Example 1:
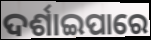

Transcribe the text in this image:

ଦର୍ଶାଇପାରେ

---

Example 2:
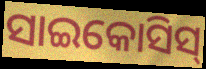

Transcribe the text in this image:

ସାଇକୋସିସ୍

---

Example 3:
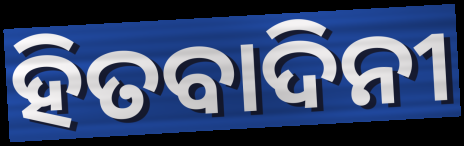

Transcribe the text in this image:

ହିତବାଦିନୀ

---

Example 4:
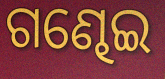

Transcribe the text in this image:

ଗଣ୍ଢେଇ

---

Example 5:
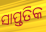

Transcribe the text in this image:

ସାପ୍ତତିକ